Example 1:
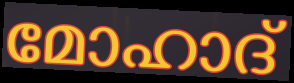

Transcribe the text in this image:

മോഹാദ്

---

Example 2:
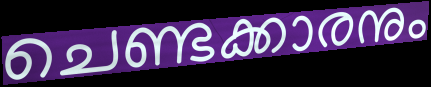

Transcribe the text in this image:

ചെണ്ടക്കാരനും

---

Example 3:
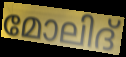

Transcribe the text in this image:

മോലിദ്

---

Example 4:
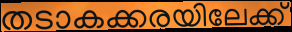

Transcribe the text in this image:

തടാകക്കരയിലേക്ക്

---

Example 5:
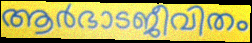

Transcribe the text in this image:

ആർഭാടജീവിതം